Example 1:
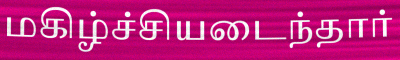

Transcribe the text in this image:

மகிழ்ச்சியடைந்தார்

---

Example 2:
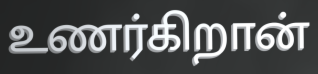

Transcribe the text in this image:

உணர்கிறான்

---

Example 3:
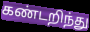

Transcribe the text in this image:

கண்டறிந்து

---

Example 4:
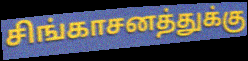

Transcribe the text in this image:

சிங்காசனத்துக்கு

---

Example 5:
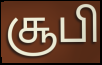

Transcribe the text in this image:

சூபி